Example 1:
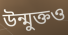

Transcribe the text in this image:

উন্মুক্তও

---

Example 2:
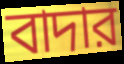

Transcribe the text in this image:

বাদার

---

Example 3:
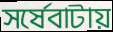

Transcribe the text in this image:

সর্ষেবাটায়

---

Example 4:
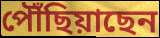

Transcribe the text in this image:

পৌঁছিয়াছেন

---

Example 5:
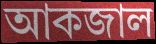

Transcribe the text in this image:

আকজাল